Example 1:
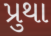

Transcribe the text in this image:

પ્રુથા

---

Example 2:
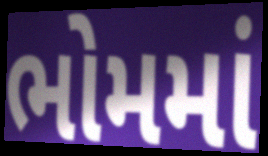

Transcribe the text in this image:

ભોમમાં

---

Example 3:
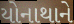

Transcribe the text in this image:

યોનાથાને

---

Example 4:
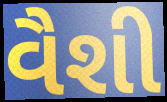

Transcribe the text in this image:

વૈશી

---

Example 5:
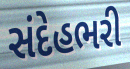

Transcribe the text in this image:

સંદેહભરી